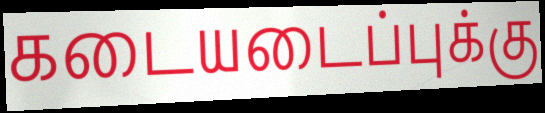
கடையடைப்புக்கு